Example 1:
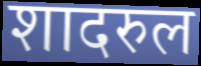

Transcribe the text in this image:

शादरुल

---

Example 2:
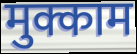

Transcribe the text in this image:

मुक्काम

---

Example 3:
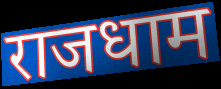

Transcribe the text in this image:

राजधाम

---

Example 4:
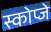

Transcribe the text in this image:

स्कोप्जे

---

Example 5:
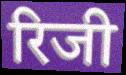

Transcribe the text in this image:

रिजी